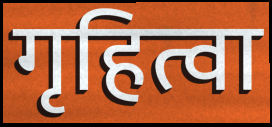
गृहित्वा